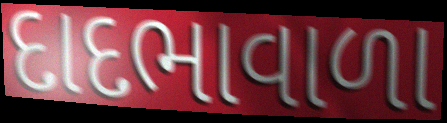
દાદભાવાળા